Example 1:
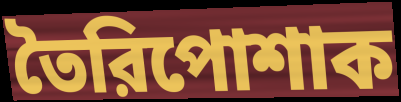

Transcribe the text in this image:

তৈরিপোশাক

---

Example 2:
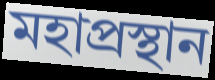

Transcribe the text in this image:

মহাপ্রস্থান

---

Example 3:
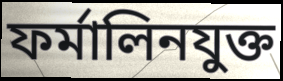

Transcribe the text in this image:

ফর্মালিনযুক্ত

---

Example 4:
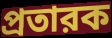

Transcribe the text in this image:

প্রতারক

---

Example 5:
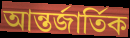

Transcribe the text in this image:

আন্তর্জার্তিক